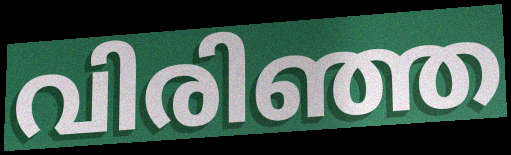
വിരിഞ്ഞ